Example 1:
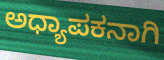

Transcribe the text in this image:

ಅಧ್ಯಾಪಕನಾಗಿ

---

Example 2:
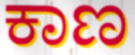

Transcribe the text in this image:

ಕಾಣ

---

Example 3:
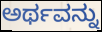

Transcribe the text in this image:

ಅರ್ಥವನ್ನು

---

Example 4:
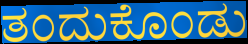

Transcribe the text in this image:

ತಂದುಕೊಂಡು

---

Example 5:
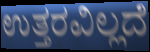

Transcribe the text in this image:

ಉತ್ತರವಿಲ್ಲದೆ